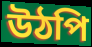
উঠপি